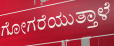
ಗೋಗರೆಯುತ್ತಾಳೆ